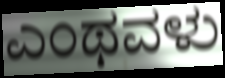
ಎಂಥವಳು